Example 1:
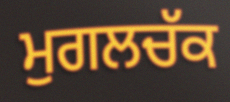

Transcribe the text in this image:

ਮੁਗਲਚੱਕ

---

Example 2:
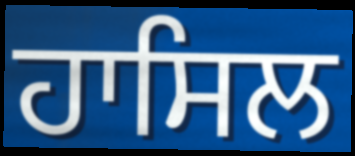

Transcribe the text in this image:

ਹਾਸਿਲ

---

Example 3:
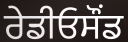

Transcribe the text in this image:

ਰੇਡੀਓਸੌਂਡ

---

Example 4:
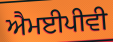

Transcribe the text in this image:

ਐਮਈਪੀਵੀ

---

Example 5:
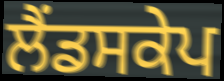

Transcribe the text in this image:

ਲੈਂਡਸਕੇਪ